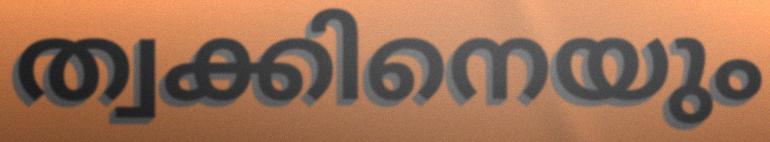
ത്വക്കിനെയും